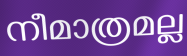
നീമാത്രമല്ല